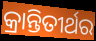
କ୍ରାନ୍ତିତୀର୍ଥର